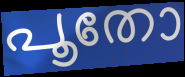
പൂതോ